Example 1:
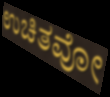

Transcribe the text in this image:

ಉಚಿತವೋ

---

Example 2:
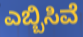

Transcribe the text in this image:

ಎಬ್ಬಿಸಿವೆ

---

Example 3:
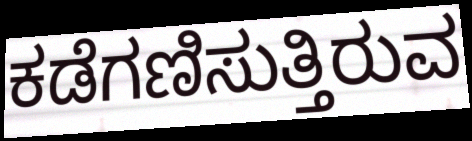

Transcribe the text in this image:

ಕಡೆಗಣಿಸುತ್ತಿರುವ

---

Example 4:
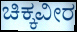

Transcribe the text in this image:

ಚಿಕ್ಕವೀರ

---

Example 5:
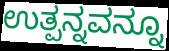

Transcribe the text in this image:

ಉತ್ಪನ್ನವನ್ನೂ